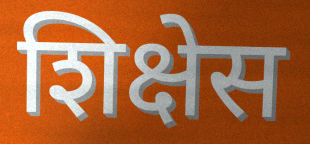
शिक्षेस